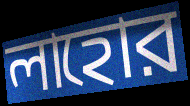
লাহোর